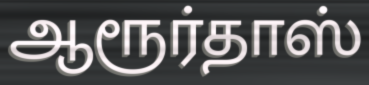
ஆரூர்தாஸ்